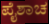
ಪೈಶಾಚ